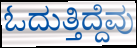
ಓದುತ್ತಿದ್ದೆವು